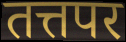
तत्तपर